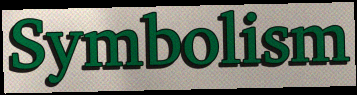
Symbolism